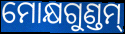
ମୋକ୍ଷଗୁଣ୍ଡମ୍